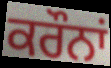
ਕਰੌਨਾਂ